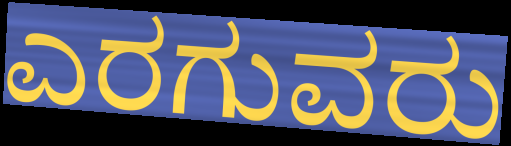
ಎರಗುವರು